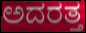
ಅದರತ್ತ